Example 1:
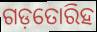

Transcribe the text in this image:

ଗଡ଼ତୋରିହ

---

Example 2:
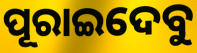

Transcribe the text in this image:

ପୂରାଇଦେବୁ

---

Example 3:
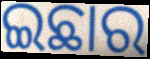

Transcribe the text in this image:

ଇଛାର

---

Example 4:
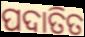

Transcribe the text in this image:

ପଦାତିତ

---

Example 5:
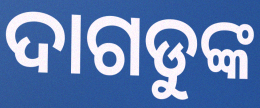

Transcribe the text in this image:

ଦାଗଡୁଙ୍କ